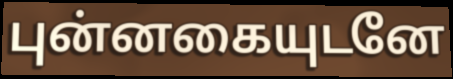
புன்னகையுடனே